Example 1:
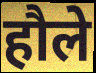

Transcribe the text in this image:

हौले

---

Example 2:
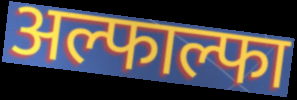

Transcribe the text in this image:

अल्फाल्फा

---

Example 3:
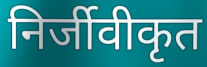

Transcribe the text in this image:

निर्जीवीकृत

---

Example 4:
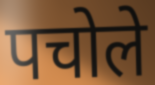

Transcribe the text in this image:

पचोले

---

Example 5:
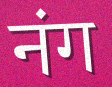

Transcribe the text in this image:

नंग